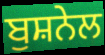
ਬੁਸ਼ਨੇਲ